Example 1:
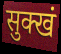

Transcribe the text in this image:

सुक्खं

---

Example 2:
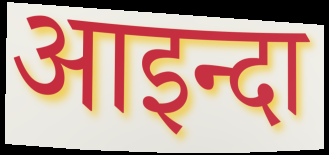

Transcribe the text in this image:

आइन्दा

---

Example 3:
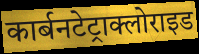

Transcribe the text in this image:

कार्बनटेट्राक्लोराइड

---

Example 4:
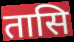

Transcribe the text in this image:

तासि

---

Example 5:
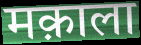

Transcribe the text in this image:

मक़ाला